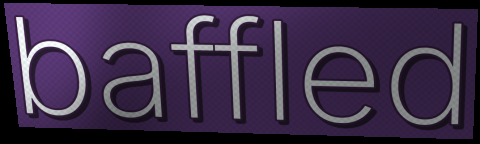
baffled